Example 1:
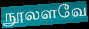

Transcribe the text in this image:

நூலளவே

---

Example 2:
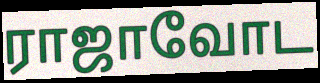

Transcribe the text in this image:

ராஜாவோட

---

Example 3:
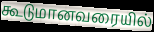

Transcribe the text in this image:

கூடுமானவரையில்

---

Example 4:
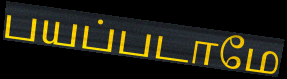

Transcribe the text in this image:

பயப்படாமே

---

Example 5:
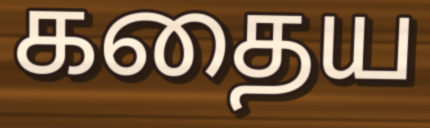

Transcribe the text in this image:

கதைய